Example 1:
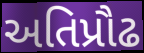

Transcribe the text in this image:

અતિપ્રૌઢ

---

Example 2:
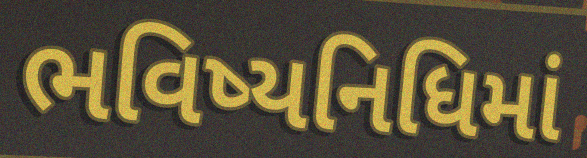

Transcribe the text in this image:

ભવિષ્યનિધિમાં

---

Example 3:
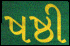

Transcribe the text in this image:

ષષ્ઠી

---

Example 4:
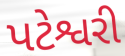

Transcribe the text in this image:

પટેશ્વરી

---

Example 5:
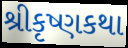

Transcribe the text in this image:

શ્રીકૃષ્ણકથા